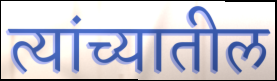
त्यांच्यातील